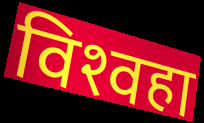
विश्वहा